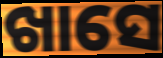
ଖାସେ